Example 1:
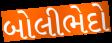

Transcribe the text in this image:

બોલીભેદો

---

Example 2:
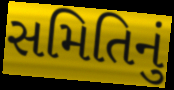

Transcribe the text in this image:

સમિતિનું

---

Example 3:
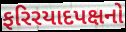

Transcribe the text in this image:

ફરિરયાદપક્ષનો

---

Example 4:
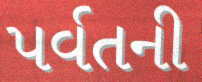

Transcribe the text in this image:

પર્વતની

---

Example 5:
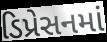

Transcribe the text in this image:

ડિપ્રેસનમાં